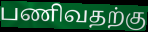
பணிவதற்கு